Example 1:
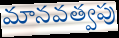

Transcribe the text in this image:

మానవత్వపు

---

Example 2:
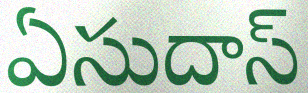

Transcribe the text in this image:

ఏసుదాస్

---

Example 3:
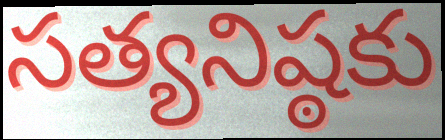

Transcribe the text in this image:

సత్యనిష్ఠకు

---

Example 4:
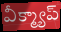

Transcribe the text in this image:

వీక్మ్యాప్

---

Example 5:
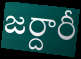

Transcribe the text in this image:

జర్దారీ